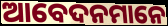
ଆବେଦନମାନେ